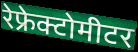
रेफ्रेक्टोमीटर